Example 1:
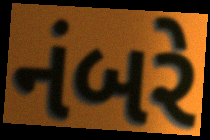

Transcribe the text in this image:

નંબરે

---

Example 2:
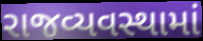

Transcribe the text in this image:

રાજવ્યવસ્થામાં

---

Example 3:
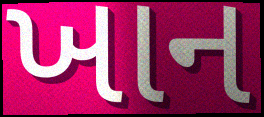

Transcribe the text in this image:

ખાન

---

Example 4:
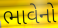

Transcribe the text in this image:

ભાવેનો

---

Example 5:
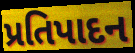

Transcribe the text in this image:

પ્રતિપાદન